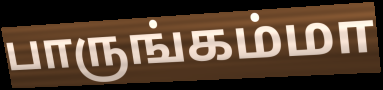
பாருங்கம்மா